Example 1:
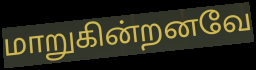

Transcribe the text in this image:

மாறுகின்றனவே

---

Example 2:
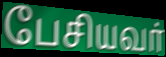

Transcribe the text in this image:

பேசியவர்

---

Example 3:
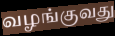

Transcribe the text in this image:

வழங்குவது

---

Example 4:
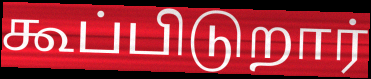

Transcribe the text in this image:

கூப்பிடுறார்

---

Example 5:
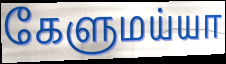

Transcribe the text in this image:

கேளுமய்யா